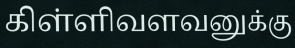
கிள்ளிவளவனுக்கு